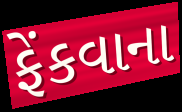
ફેંકવાના